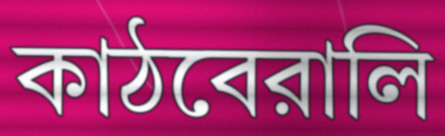
কাঠবেরালি